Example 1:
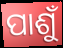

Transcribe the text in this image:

ପାଶୁଁ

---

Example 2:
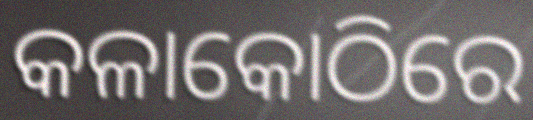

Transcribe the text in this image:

କଳାକୋଠିରେ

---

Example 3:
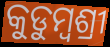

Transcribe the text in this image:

କୁଡୁମ୍ବଶ୍ରୀ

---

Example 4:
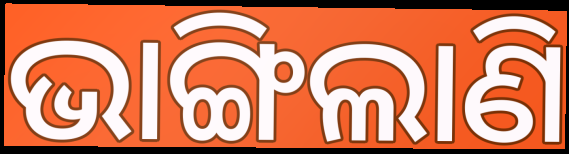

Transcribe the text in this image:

ଭାଙ୍ଗିଲାଣି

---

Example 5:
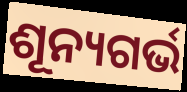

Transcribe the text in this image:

ଶୂନ୍ୟଗର୍ଭ